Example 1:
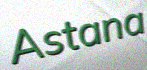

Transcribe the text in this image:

Astana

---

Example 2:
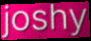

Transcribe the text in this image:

joshy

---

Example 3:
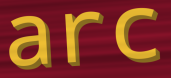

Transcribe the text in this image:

arc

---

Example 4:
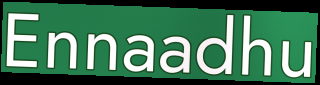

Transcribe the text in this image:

Ennaadhu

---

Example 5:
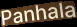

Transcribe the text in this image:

Panhala